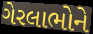
ગેરલાભોને